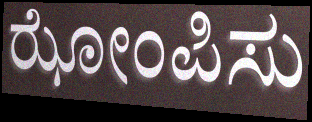
ಝೋಂಪಿಸು